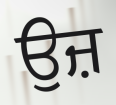
ਉਜ਼